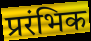
प्ररंभिक